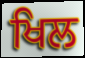
ਖਿਲ